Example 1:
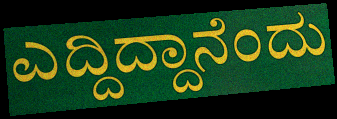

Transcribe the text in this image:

ಎದ್ದಿದ್ದಾನೆಂದು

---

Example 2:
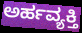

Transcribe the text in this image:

ಅರ್ಹವ್ಯಕ್ತಿ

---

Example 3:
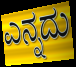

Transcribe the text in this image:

ಎನ್ನದು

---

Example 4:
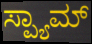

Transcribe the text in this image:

ಸ್ಪ್ಯಾಮ್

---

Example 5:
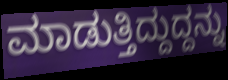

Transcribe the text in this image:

ಮಾಡುತ್ತಿದ್ದುದ್ದನ್ನು